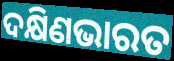
ଦକ୍ଷିଣଭାରତ